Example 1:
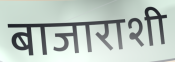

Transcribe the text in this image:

बाजाराशी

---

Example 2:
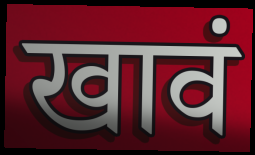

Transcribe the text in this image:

खावं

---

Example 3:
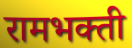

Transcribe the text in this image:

रामभक्ती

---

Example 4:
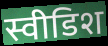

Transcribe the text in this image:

स्वीडिश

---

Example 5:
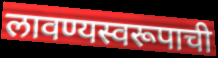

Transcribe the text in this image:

लावण्यस्वरूपाची